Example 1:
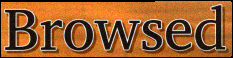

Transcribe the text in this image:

Browsed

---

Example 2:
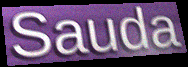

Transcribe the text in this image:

Sauda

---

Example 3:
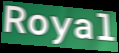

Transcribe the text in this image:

Royal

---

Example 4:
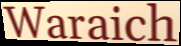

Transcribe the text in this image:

Waraich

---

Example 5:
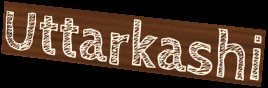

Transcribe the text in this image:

Uttarkashi